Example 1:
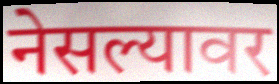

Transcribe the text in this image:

नेसल्यावर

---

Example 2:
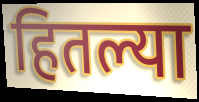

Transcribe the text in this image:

हितल्या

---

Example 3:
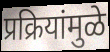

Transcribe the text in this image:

प्रक्रियांमुळे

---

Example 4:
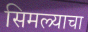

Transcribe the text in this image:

सिमल्याचा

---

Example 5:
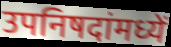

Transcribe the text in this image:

उपनिषदांमध्यें